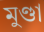
মুণ্ডা